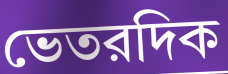
ভেতরদিক